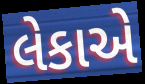
લેકાએ